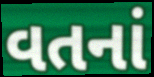
વતનાં